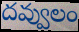
దవ్వులం